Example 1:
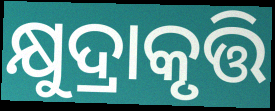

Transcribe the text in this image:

କ୍ଷୁଦ୍ରାକୃତ୍ତି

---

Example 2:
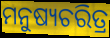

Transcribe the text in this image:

ମନୁଷ୍ୟଚରିତ୍ର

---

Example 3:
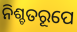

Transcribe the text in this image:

ନିଶ୍ଚତରୂପେ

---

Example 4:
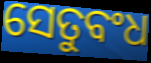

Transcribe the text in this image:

ସେତୁବଂଧ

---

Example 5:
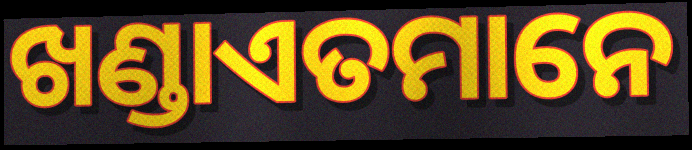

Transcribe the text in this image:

ଖଣ୍ଡାଏତମାନେ